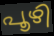
പൂഴി